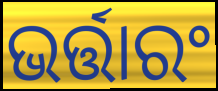
ଭର୍ତ୍ତାରଂ